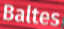
Baltes